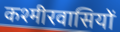
कश्मीरवासियों